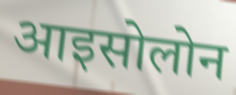
आइसोलोन